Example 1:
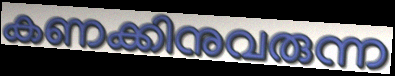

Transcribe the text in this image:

കണക്കിനുവരുന്ന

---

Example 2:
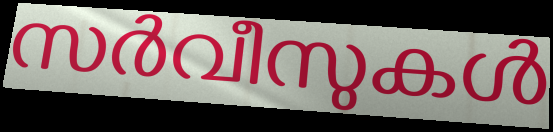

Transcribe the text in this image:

സർവീസുകൾ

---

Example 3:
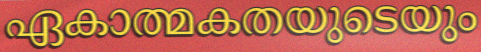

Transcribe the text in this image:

ഏകാത്മകതയുടെയും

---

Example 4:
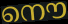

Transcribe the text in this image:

നൌ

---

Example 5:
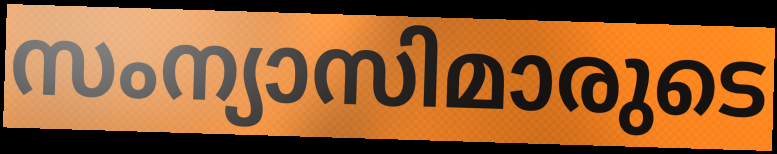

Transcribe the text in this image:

സംന്യാസിമാരുടെ